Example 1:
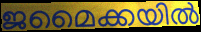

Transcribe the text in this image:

ജമൈക്കയിൽ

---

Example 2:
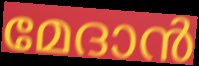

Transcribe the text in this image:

മേദാൻ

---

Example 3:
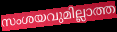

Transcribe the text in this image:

സംശയവുമില്ലാത്ത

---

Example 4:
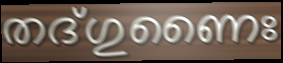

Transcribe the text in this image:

തദ്ഗുണൈഃ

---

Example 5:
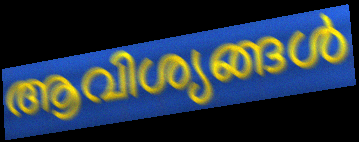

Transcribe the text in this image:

ആവിശ്യങ്ങൾ